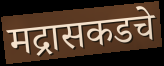
मद्रासकडचे